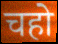
चहो